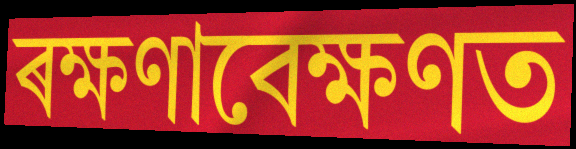
ৰক্ষণাবেক্ষণত